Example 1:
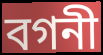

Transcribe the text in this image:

বগনী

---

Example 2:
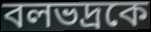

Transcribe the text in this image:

বলভদ্রকে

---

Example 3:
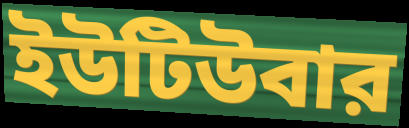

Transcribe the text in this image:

ইউটিউবার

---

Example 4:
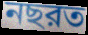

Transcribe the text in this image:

নছরত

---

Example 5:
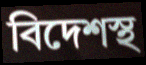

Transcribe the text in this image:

বিদেশস্থ